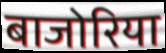
बाजोरिया